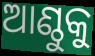
ଆଣ୍ଠୁକୁ